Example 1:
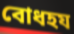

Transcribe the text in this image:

বোধহয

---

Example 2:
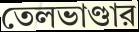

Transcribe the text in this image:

তেলভাণ্ডার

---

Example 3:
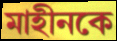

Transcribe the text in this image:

মাহীনকে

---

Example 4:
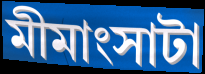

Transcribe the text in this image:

মীমাংসাটা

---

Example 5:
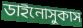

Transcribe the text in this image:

ডাইনোসুকাস